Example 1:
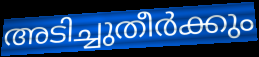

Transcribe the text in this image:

അടിച്ചുതീർക്കും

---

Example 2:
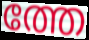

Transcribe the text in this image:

ത്തേ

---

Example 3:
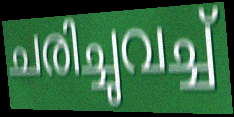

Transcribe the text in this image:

ചരിച്ചുവച്ച്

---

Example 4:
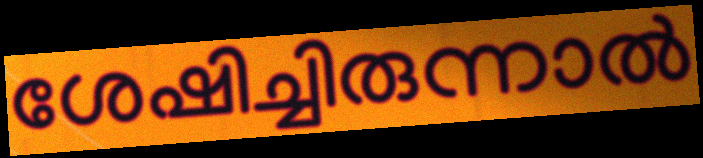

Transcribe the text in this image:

ശേഷിച്ചിരുന്നാൽ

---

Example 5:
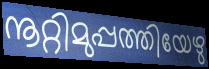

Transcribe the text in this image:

നൂറ്റിമുപ്പത്തിയേഴു